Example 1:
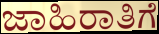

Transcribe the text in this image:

ಜಾಹಿರಾತಿಗೆ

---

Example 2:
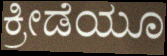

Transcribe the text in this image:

ಕ್ರೀಡೆಯೂ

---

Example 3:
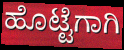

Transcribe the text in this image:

ಹೊಟ್ಟೆಗಾಗಿ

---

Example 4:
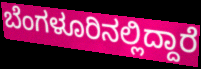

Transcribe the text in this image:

ಬೆಂಗಳೂರಿನಲ್ಲಿದ್ದಾರೆ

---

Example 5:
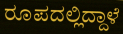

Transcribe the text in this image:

ರೂಪದಲ್ಲಿದ್ದಾಳೆ